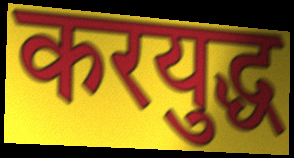
करयुद्ध